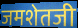
जमशेतजी